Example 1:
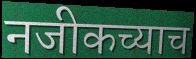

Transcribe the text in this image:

नजीकच्याच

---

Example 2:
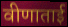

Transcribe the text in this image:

वीणाताई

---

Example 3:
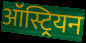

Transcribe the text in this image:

ऑस्ट्रियन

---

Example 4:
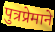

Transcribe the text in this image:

पुत्रप्रेमाने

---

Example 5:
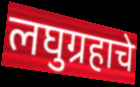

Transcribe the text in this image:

लघुग्रहाचे